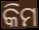
କିମ